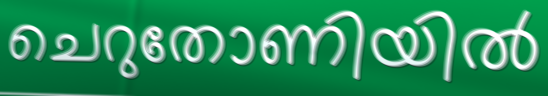
ചെറുതോണിയിൽ